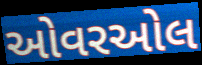
ઓવરઓલ